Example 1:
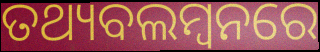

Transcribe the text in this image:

ତଥ୍ୟବଲମ୍ବନରେ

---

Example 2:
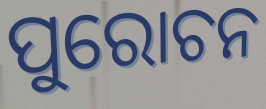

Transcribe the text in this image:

ପୁରୋଚନ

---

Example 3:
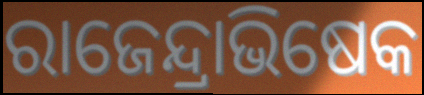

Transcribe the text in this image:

ରାଜେନ୍ଦ୍ରାଭିଷେକ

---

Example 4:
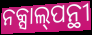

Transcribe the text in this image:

ନକ୍ସାଲ୍‌ପନ୍ଥୀ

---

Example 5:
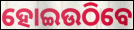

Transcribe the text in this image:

ହୋଇଉଠିବେ